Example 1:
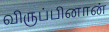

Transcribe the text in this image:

விருப்பினான்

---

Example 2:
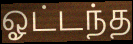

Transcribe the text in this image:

ஓட்டந்த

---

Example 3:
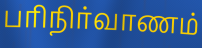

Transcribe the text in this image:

பரிநிர்வாணம்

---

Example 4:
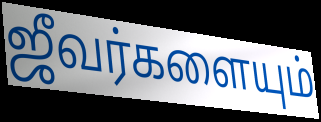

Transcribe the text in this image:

ஜீவர்களையும்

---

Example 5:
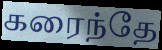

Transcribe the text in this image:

கரைந்தே